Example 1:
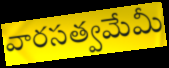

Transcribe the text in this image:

వారసత్వమేమీ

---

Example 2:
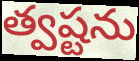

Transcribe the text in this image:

త్వష్టను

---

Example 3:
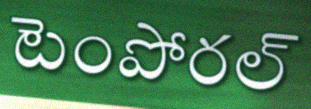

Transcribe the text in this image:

టెంపోరల్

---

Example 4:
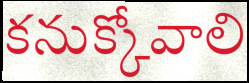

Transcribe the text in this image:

కనుక్కోవాలి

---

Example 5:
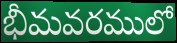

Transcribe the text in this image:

భీమవరములో